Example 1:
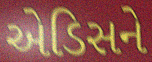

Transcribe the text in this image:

એડિસને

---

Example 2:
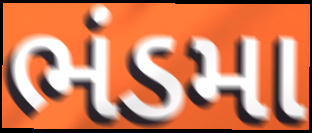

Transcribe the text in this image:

ભંડમા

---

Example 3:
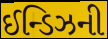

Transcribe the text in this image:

ઈન્ડિઝની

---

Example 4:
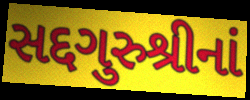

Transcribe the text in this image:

સદ્દગુરુશ્રીનાં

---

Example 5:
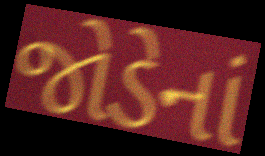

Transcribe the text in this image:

જોડેનાં